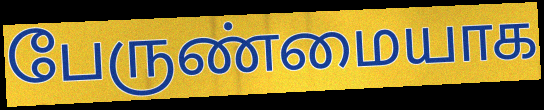
பேருண்மையாக